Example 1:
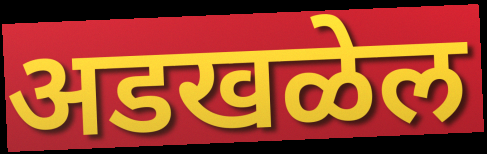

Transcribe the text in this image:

अडखळेल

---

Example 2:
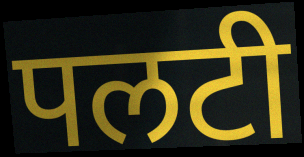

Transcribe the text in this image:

पलटी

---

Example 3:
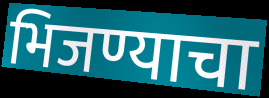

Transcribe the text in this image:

भिजण्याचा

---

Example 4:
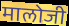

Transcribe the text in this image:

मालोजी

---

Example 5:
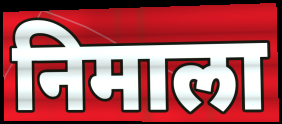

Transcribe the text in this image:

निमाला